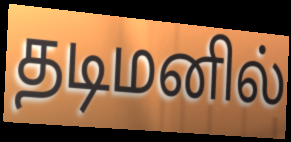
தடிமனில்